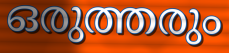
ഒരുത്തരും